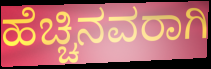
ಹೆಚ್ಚಿನವರಾಗಿ